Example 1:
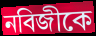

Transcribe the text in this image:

নবিজীকে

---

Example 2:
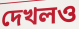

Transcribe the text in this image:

দেখলও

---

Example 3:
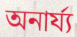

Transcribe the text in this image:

অনার্য্য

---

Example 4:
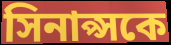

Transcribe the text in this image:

সিনাপ্সকে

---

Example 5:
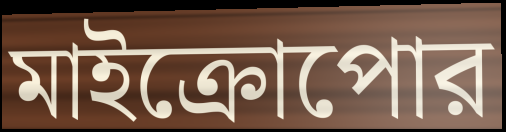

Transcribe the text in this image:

মাইক্রোপোর